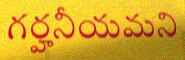
గర్హనీయమని